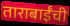
ताराबाईंची